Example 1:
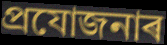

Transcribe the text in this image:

প্ৰযোজনাৰ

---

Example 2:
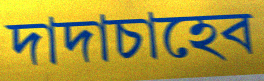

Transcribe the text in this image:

দাদাচাহেব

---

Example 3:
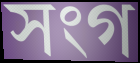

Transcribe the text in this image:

সংগ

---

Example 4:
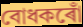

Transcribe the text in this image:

বোধকৰোঁ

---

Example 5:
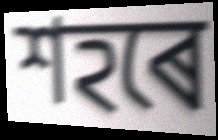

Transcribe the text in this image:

শহৰে